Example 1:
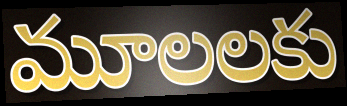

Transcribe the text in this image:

మూలలకు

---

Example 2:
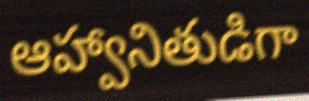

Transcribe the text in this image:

ఆహ్వానితుడిగా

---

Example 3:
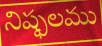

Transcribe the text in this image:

నిష్ఫలము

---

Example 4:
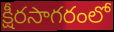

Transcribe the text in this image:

క్షీరసాగరంలో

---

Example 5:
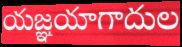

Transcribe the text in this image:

యజ్ఞయాగాదుల